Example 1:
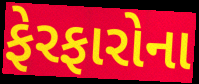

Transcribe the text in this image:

ફેરફારોના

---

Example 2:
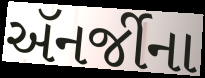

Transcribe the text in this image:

ઍનર્જીના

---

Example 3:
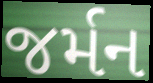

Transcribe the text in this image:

જર્મન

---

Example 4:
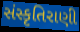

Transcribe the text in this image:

સંસ્કૃતિરાણી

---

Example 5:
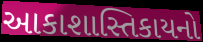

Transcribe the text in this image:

આકાશાસ્તિકાયનો